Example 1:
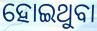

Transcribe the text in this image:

ହୋଇଥୁବା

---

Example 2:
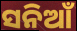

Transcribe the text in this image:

ସନିଆଁ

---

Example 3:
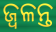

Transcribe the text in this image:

ଜ୍ଵଳନ୍ତ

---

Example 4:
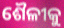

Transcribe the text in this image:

ଶୈଳୀକୁ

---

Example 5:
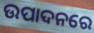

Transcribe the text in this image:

ଉପାଦନରେ